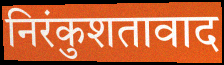
निरंकुशतावाद